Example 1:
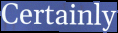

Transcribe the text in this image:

Certainly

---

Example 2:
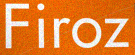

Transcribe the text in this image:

Firoz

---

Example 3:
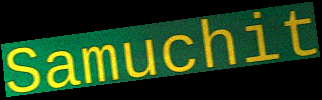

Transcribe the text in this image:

Samuchit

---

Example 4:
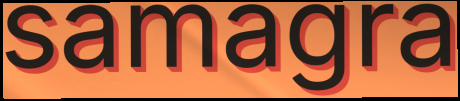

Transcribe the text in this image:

samagra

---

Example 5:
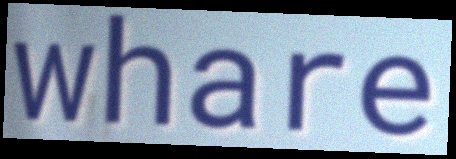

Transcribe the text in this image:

whare